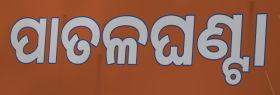
ପାତଳଘଣ୍ଟା